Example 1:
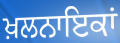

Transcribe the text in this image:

ਖ਼ਲਨਾਇਕਾਂ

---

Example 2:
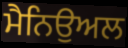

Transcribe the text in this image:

ਮੈਨਿਉਅਲ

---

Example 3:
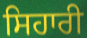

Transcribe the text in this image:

ਸਿਹਾਰੀ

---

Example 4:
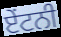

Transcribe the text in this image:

ਏਂਟਨੀ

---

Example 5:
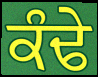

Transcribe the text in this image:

ਕੰਢੇ